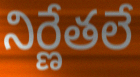
నిర్ణేతలే